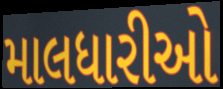
માલધારીઓ